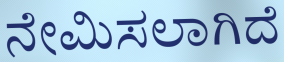
ನೇಮಿಸಲಾಗಿದೆ